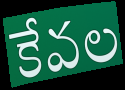
కేవల